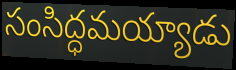
సంసిద్ధమయ్యాడు